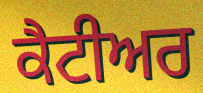
ਕੈਟੀਅਰ